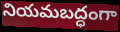
నియమబద్ధంగా